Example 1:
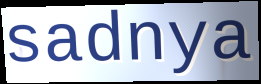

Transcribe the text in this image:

sadnya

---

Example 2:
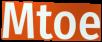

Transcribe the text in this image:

Mtoe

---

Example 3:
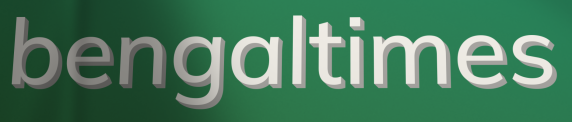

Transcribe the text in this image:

bengaltimes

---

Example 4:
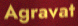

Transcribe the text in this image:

Agravat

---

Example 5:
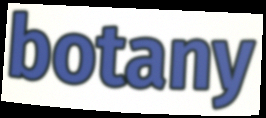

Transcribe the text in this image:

botany